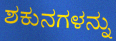
ಶಕುನಗಳನ್ನು